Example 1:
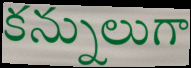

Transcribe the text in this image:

కన్నులుగా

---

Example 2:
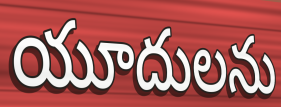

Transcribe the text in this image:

యూదులను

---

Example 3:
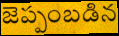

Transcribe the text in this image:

జెప్పంబడిన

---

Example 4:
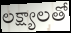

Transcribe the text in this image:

లక్ష్యాలతో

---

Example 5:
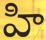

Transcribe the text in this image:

హి